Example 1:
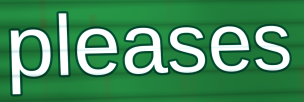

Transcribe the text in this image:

pleases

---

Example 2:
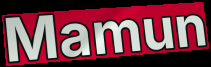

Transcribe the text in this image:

Mamun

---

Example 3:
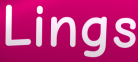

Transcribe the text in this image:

Lings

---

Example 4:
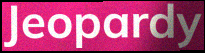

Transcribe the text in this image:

Jeopardy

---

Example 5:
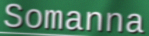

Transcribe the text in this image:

Somanna